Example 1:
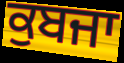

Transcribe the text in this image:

ਕੁਬਜਾ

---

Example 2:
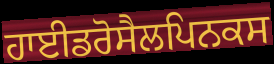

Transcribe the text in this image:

ਹਾਈਡਰੋਸੈਲਪਿਨਕਸ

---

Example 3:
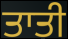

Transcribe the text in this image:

ਤਾਤੀ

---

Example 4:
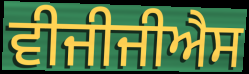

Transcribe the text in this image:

ਵੀਜੀਜੀਐਸ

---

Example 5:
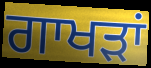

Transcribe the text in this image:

ਗਾਖੜਾਂ